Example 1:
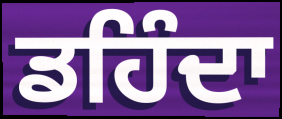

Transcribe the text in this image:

ਡਹਿੰਦਾ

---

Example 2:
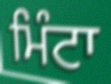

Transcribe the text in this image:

ਮਿੰਟਾ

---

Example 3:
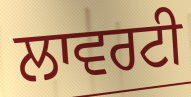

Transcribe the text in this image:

ਲਾਵਰਟੀ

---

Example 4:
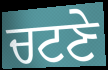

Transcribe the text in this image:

ਚਟਣੇ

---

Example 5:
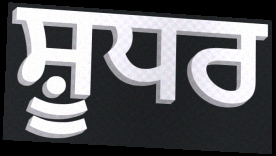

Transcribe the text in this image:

ਸ਼ੂਧਰ